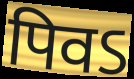
पिवऽ